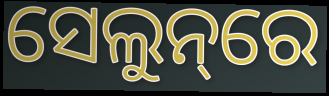
ସେଲୁନ୍‌ରେ